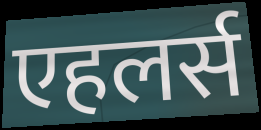
एहलर्स